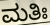
ಮತಿಃ